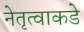
नेतृत्वाकडे